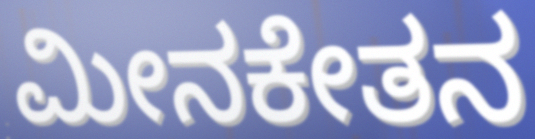
ಮೀನಕೇತನ